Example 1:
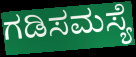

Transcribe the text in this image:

ಗಡಿಸಮಸ್ಯೆ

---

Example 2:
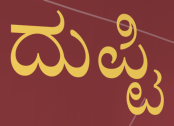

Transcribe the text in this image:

ದುಪ್ಟಿ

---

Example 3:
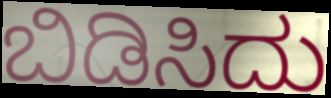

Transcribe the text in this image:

ಬಿಡಿಸಿದು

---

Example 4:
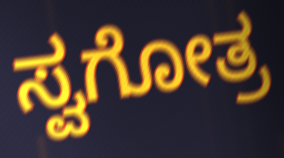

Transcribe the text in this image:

ಸ್ವಗೋತ್ರ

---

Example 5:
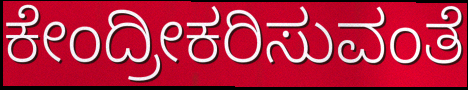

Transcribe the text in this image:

ಕೇಂದ್ರೀಕರಿಸುವಂತೆ